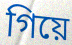
গিয়ে